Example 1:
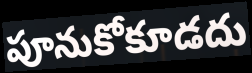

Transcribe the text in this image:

పూనుకోకూడదు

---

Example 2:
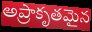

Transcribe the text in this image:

అప్రాకృతమైన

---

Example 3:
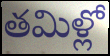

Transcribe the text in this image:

తమిళ్లో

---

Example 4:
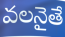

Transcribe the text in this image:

వలనైతే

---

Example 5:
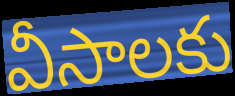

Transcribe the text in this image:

వీసాలకు